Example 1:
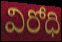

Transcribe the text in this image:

విరోధి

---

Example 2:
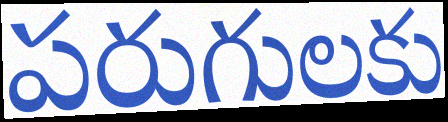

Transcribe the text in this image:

పరుగులకు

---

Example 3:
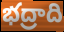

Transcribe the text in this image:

భద్రాది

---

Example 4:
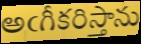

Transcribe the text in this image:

అఁగీకరిస్తాను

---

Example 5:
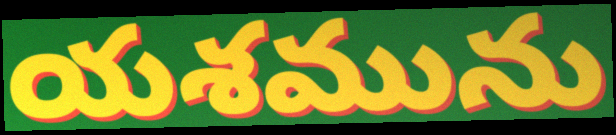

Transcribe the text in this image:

యశమును